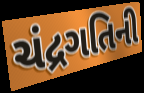
ચંદ્રગતિની